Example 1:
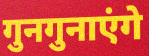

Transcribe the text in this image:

गुनगुनाएंगे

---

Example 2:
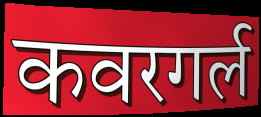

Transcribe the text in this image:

कवरगर्ल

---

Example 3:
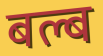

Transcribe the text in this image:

बल्ब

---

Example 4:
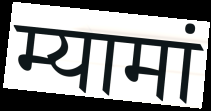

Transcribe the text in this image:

म्यामां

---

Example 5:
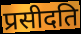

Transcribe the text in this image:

प्रसीदति